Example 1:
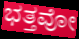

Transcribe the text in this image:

ಭತ್ತವೋ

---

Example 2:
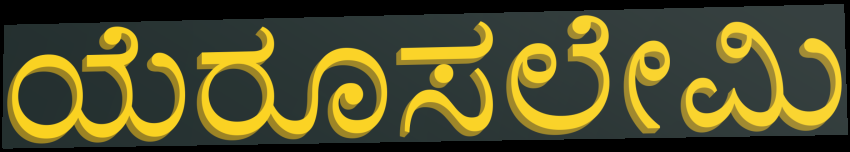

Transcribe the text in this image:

ಯೆರೂಸಲೇಮಿ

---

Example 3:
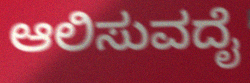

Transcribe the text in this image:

ಆಲಿಸುವದೈ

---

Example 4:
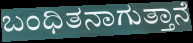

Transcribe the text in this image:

ಬಂಧಿತನಾಗುತ್ತಾನೆ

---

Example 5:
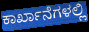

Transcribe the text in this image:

ಕಾರ್ಖಾನೆಗಳಲ್ಲಿ